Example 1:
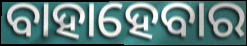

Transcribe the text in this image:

ବାହାହେବାର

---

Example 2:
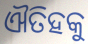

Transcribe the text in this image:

ଐତିହକୁ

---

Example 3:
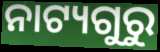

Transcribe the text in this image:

ନାଟ୍ୟଗୁରୁ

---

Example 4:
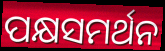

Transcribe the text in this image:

ପକ୍ଷସମର୍ଥନ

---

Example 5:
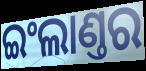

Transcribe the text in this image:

ଇଂଲାଣ୍ତର